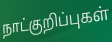
நாட்குறிப்புகள்